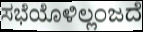
ಸಭೆಯೊಳಿಲ್ಲಂಜದೆ